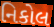
નિકોલ